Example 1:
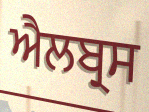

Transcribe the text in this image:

ਐਲਬ੍ਰਸ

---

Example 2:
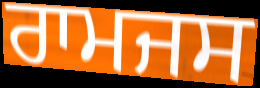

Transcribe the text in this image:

ਰਾਮਜਸ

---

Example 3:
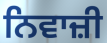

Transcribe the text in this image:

ਨਿਵਾਜ਼ੀ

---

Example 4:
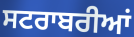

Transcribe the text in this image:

ਸਟਰਾਬਰੀਆਂ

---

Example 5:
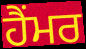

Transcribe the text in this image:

ਹੈਂਮਰ